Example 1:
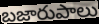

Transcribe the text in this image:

బజారుపాలు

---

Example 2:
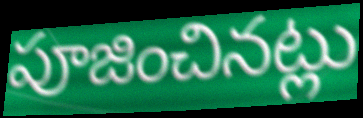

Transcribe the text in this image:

పూజించినట్లు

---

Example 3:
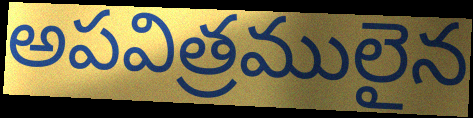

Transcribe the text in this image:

అపవిత్రములైన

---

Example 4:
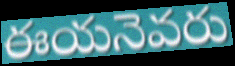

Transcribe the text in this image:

ఈయనెవరు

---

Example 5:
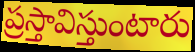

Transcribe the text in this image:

ప్రస్తావిస్తుంటారు